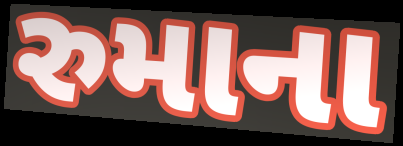
રુમાના